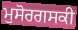
ਮੁਸੋਰਗਸਕੀ